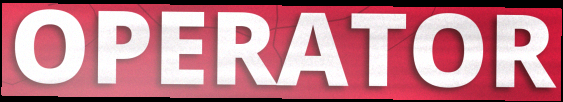
OPERATOR